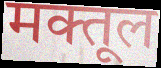
मक्तूल